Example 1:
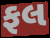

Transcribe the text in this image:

ફલ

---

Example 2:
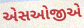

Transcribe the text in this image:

એસઓજીએ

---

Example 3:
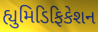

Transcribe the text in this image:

હ્યુમિડિફિકેશન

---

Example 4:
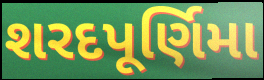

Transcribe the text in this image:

શરદપૂર્ણિમા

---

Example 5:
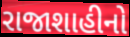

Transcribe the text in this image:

રાજાશાહીનો